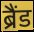
ब्रैंड